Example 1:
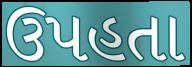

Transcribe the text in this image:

ઉપહતા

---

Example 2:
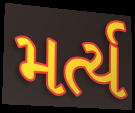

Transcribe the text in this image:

મર્ત્ય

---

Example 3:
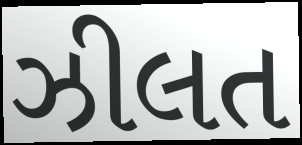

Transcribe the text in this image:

ઝીલત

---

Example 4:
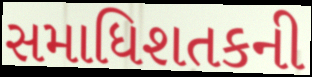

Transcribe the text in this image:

સમાધિશતકની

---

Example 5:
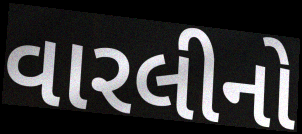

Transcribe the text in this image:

વારલીનો